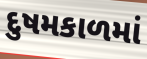
દુષમકાળમાં